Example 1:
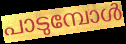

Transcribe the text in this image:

പാടുമ്പോൾ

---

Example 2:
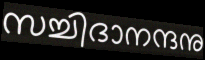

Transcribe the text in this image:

സച്ചിദാനന്ദനു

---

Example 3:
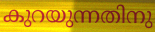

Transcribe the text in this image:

കുറയുന്നതിനു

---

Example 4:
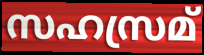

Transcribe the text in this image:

സഹസ്രമ്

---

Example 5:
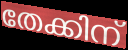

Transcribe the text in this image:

തേക്കിന്